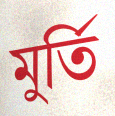
মুৰ্তি